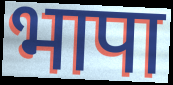
भापा